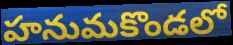
హనుమకొండలో